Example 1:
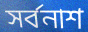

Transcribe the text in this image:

সৰ্বনাশ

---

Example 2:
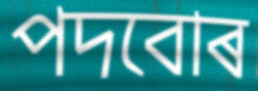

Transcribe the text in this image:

পদবোৰ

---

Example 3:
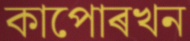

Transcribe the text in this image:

কাপোৰখন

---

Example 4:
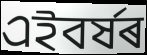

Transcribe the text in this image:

এইবৰ্ষৰ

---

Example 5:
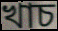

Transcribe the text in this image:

খাচ